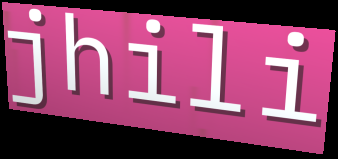
jhili